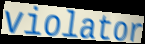
violator